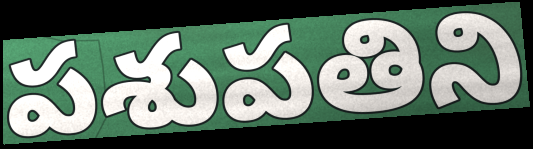
పశుపతిని